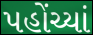
પહોંચ્યાં